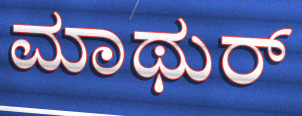
ಮಾಥುರ್